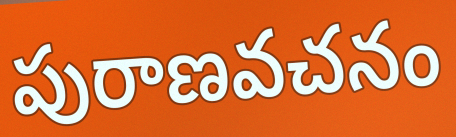
పురాణవచనం